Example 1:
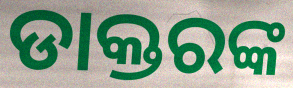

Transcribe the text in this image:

ଡାକ୍ତରଙ୍କ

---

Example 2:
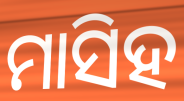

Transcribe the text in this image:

ମାସିହ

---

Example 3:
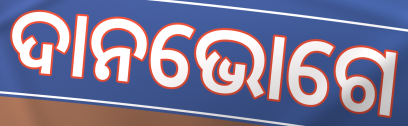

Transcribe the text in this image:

ଦାନଭୋଗେ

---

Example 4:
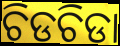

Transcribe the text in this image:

ଚିଡଚିଡା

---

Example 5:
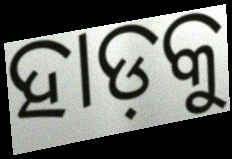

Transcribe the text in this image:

ହାଡ଼କୁ